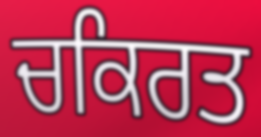
ਚਕਿਰਤ